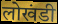
लोखंडी